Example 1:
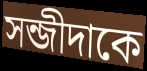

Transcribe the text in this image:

সন্জীদাকে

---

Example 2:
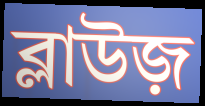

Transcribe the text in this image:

ব্লাউজ়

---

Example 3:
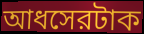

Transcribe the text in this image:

আধসেরটাক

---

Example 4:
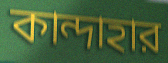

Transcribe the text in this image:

কান্দাহার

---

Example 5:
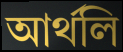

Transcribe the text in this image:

আর্থলি